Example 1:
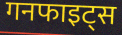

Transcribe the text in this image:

गनफाइट्स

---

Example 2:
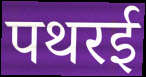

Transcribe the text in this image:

पथरई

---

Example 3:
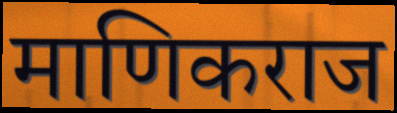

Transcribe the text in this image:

माणिकराज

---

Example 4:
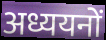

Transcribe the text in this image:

अध्ययनों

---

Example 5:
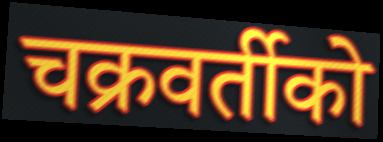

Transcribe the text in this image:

चक्रवर्तीको